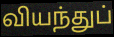
வியந்துப்